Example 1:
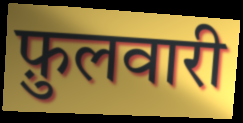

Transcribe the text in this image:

फ़ुलवारी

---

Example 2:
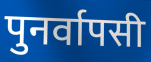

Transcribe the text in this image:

पुनर्वापसी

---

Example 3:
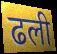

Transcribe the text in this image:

ढली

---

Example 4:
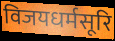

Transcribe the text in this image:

विजयधर्मसूरि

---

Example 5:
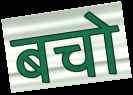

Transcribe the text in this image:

बचो